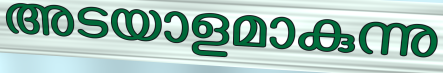
അടയാളമാകുന്നു